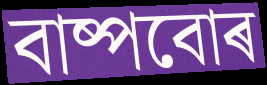
বাষ্পবোৰ